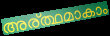
അര്ത്ഥമാകാം